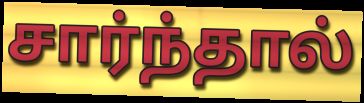
சார்ந்தால்